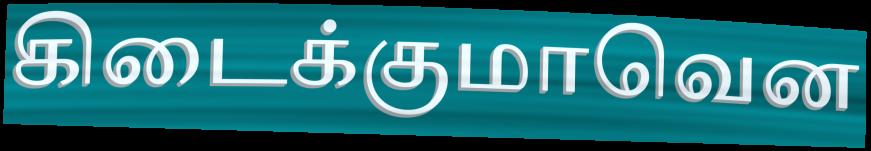
கிடைக்குமாவென